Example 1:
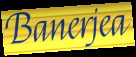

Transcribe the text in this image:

Banerjea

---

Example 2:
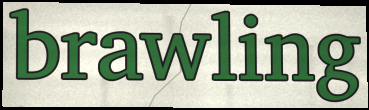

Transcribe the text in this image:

brawling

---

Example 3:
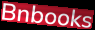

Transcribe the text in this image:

Bnbooks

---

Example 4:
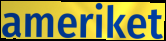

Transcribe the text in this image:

ameriket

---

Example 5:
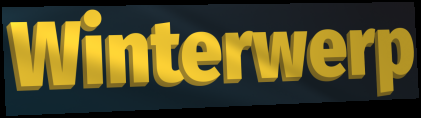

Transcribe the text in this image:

Winterwerp